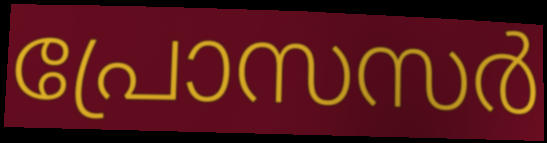
പ്രോസസർ